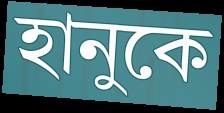
হানুকে